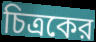
চিত্রকের